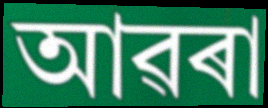
আৱৰা